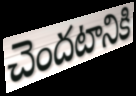
చెందటానికి